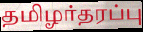
தமிழர்தரப்பு